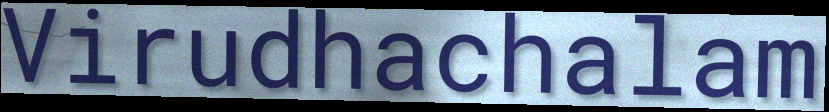
Virudhachalam